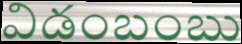
విడంబంబు